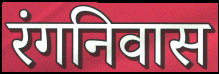
रंगनिवास